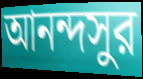
আনন্দসুর